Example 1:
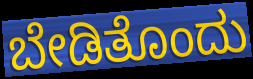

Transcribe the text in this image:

ಬೇಡಿತೊಂದು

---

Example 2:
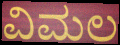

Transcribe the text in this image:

ವಿಮಲ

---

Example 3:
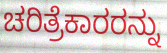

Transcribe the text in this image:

ಚರಿತ್ರೆಕಾರರನ್ನು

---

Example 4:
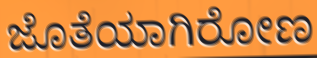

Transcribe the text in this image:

ಜೊತೆಯಾಗಿರೋಣ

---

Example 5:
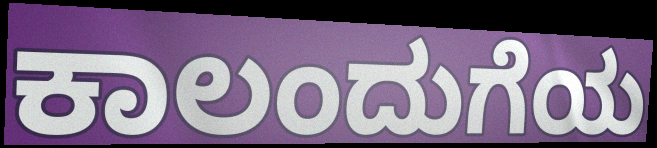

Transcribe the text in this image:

ಕಾಲಂದುಗೆಯ